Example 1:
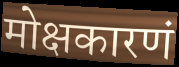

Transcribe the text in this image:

मोक्षकारणं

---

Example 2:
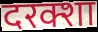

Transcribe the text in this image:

दरक्शा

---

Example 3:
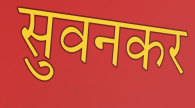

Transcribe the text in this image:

सुवनकर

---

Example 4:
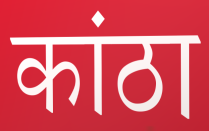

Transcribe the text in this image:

कांठा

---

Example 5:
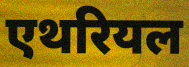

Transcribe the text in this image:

एथरियल